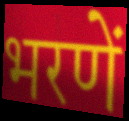
भरणें